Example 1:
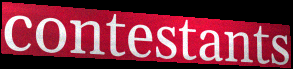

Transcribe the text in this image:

contestants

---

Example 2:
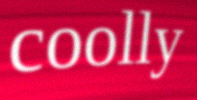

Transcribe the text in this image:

coolly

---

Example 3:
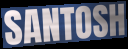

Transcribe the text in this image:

SANTOSH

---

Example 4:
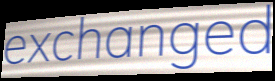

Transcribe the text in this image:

exchanged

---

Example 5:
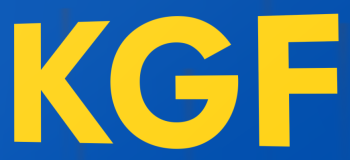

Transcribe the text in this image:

KGF